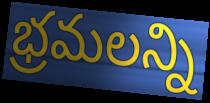
భ్రమలన్ని